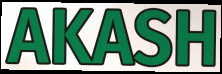
AKASH